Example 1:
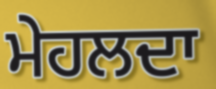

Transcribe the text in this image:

ਮੇਹਲਦਾ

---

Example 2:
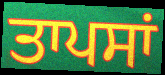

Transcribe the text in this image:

ਤਾਪਸਾਂ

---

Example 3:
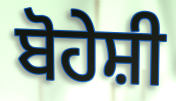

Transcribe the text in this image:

ਬੋਹੇਸ਼ੀ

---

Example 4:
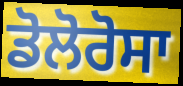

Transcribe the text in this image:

ਡੋਲੋਰੋਸਾ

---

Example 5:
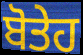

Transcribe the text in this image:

ਬੋਤੇਹ